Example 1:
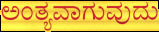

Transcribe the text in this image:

ಅಂತ್ಯವಾಗುವುದು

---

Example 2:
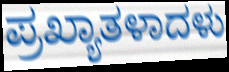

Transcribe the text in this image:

ಪ್ರಖ್ಯಾತಳಾದಳು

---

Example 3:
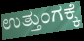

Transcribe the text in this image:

ಉತ್ತುಂಗಕ್ಕೆ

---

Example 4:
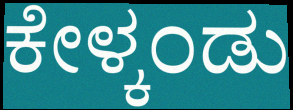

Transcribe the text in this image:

ಕೇಳ್ಕಂಡು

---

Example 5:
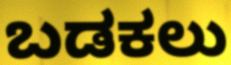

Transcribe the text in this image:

ಬಡಕಲು